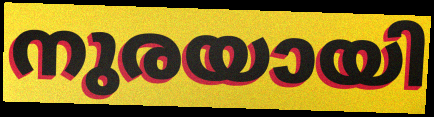
നുരയായി